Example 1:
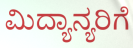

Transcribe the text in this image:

ಮಿದ್ಯಾನ್ಯರಿಗೆ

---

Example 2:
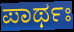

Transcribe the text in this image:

ಪಾರ್ಥಃ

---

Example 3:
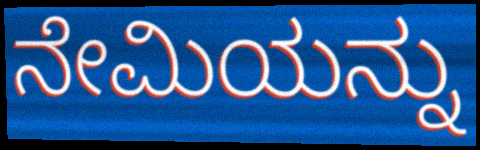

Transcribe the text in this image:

ನೇಮಿಯನ್ನು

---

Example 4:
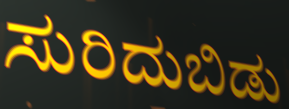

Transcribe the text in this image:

ಸುರಿದುಬಿಡು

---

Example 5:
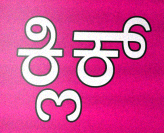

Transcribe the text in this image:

ಕ್ಲಿಕ್